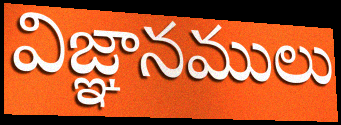
విజ్ఞానములు